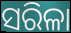
ସରିଳା